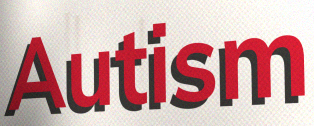
Autism